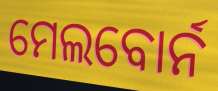
ମେଲବୋର୍ନ